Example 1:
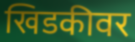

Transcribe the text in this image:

खिडकीवर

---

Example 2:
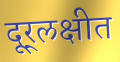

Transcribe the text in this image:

दूर्लक्षीत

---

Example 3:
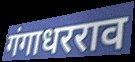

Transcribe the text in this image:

गंगाधरराव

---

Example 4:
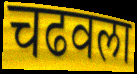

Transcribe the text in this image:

चढवला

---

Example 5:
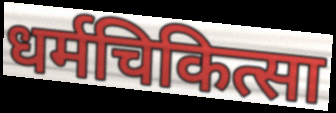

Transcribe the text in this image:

धर्मचिकित्सा